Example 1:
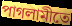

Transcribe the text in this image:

পাগলামীতে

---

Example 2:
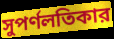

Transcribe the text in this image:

সুপর্ণলতিকার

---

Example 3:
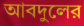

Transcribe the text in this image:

আবদুলের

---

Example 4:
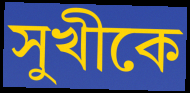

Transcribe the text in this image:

সুখীকে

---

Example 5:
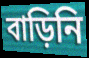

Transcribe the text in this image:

বাড়িনি